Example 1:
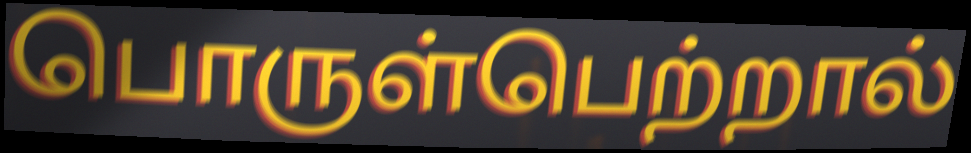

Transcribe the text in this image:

பொருள்பெற்றால்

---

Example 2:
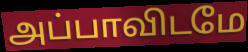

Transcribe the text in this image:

அப்பாவிடமே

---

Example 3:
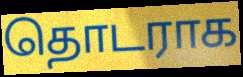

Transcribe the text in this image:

தொடராக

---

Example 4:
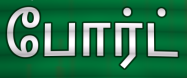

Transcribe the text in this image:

போர்ட்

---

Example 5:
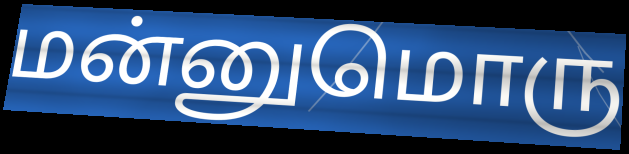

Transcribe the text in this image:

மன்னுமொரு